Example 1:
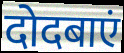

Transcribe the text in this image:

दोदबाएं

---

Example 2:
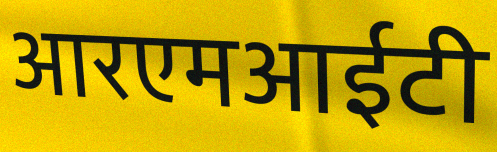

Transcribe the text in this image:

आरएमआईटी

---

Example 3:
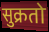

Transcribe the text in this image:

सुक्रतो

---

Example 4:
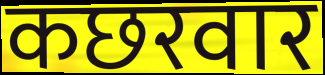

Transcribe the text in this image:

कछरवार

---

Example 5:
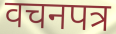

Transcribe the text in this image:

वचनपत्र